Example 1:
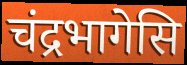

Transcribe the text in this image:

चंद्रभागेसि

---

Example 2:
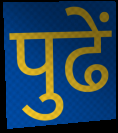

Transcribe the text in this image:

पुढें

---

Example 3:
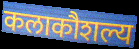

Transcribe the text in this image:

कलाकौशल्य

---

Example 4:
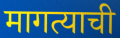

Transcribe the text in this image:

मागत्याची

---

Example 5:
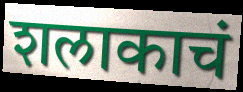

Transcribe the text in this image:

शलाकाचं